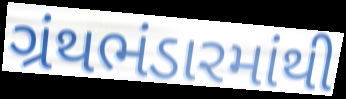
ગ્રંથભંડારમાંથી